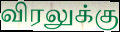
விரலுக்கு